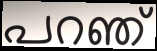
പറഞ്